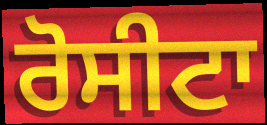
ਰੋਸੀਟਾ